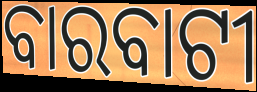
ବାରବାଟୀ